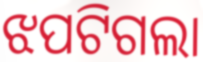
ଝପଟିଗଲା